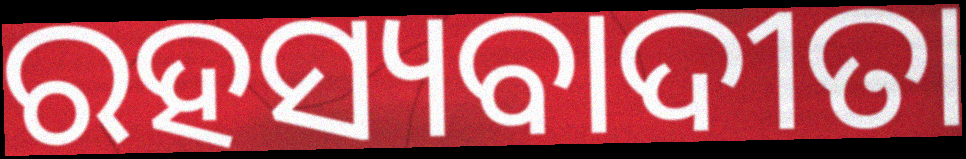
ରହସ୍ୟବାଦୀତା